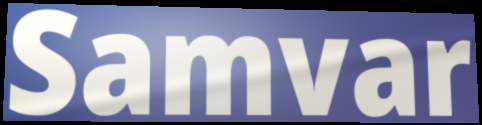
Samvar